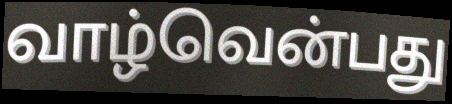
வாழ்வென்பது